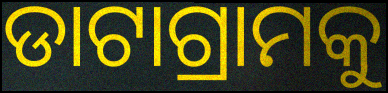
ଡାଟାଗ୍ରାମକୁ